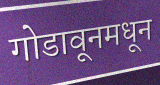
गोडावूनमधून